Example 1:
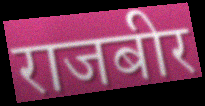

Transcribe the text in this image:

राजबीर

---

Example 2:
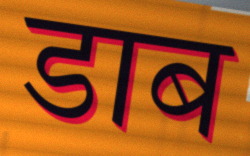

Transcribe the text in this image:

डाब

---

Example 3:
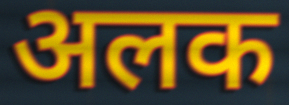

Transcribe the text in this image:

अलक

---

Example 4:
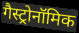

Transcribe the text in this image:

गैस्ट्रोनॉमिक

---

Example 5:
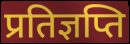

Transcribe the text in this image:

प्रतिज्ञप्ति